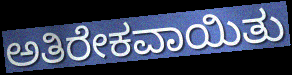
ಅತಿರೇಕವಾಯಿತು